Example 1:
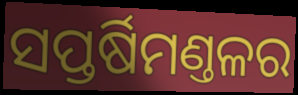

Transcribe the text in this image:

ସପ୍ତର୍ଷିମଣ୍ତଳର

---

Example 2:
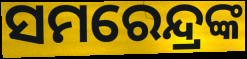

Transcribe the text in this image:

ସମରେନ୍ଦ୍ରଙ୍କ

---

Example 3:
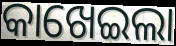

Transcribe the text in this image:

କାଖେଇଲା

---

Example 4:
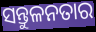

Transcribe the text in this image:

ସନ୍ତୁଳନତାର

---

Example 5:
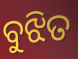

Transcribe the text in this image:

ବୁଝିତ